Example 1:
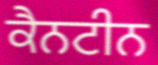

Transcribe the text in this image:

ਕੈਨਟੀਨ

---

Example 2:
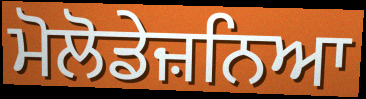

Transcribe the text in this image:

ਮੋਲੋਡੇਜ਼ਨਿਆ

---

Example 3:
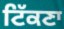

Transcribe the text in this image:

ਟਿੱਕਣਾ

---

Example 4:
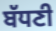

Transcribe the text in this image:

ਬੱਧਣੀ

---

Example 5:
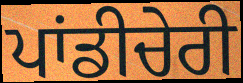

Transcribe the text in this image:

ਪਾਂਡੀਚੇਰੀ